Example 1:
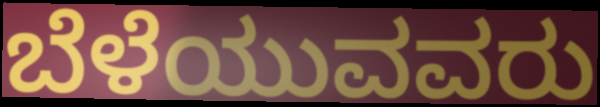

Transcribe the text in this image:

ಬೆಳೆಯುವವರು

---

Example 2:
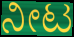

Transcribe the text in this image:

ನೀಟ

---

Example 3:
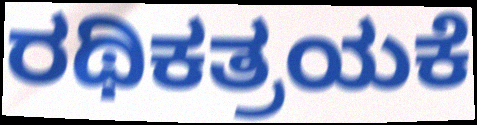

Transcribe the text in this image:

ರಥಿಕತ್ರಯಕೆ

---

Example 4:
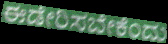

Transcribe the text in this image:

ಈಡೇರಿಸಬೇಕೆಂದು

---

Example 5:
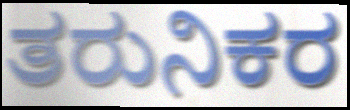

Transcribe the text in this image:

ತರುನಿಕರ